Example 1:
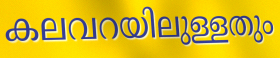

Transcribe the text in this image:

കലവറയിലുള്ളതും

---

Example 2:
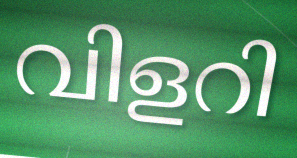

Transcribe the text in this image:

വിളറി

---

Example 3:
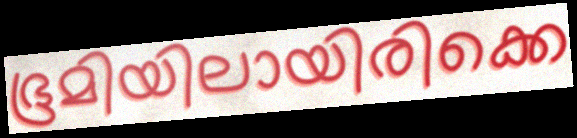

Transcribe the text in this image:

ഭൂമിയിലായിരിക്കെ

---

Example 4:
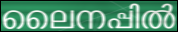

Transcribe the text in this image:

ലൈനപ്പിൽ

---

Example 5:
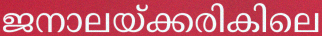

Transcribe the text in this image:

ജനാലയ്ക്കരികിലെ